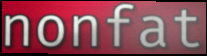
nonfat